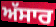
ਅੱਸਾਰ